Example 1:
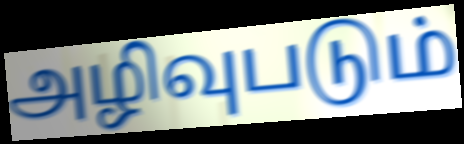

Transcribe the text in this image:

அழிவுபடும்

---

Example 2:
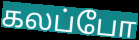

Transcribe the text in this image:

கலப்போ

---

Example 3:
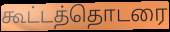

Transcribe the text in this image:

கூட்டத்தொடரை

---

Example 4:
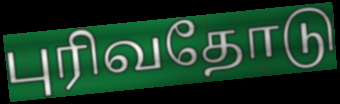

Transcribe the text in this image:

புரிவதோடு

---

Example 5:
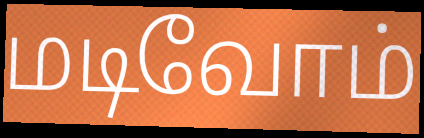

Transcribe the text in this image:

மடிவோம்